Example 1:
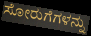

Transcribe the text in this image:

ಸೋರುಗೆಗಳನ್ನು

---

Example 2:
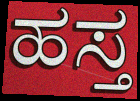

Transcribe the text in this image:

ಹಸ್ತ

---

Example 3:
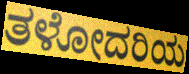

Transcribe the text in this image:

ತಳೋದರಿಯ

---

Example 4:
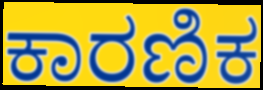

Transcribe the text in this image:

ಕಾರಣಿಕ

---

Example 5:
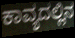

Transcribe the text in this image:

ಕಾವ್ಯದಲ್ಲಿನ